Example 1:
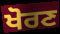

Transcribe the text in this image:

ਖੋਰਣ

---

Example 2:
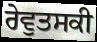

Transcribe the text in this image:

ਰੇਵੁਤਸਕੀ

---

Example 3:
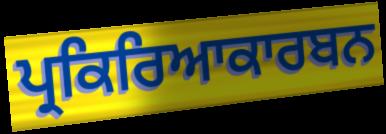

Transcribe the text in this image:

ਪ੍ਰਕਿਰਿਆਕਾਰਬਨ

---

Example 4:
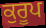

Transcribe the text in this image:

ਕੁਰੂਪ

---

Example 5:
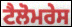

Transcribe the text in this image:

ਟੈਲੋਮਰੇਸ